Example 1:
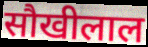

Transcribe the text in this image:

सौखीलाल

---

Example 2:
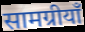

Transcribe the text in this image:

सामग्रीयाँ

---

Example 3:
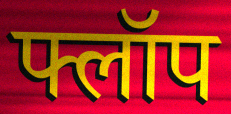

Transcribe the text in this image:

फ्लॉप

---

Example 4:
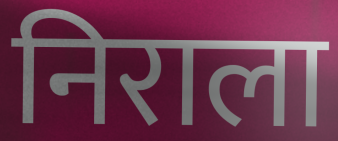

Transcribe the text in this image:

निराला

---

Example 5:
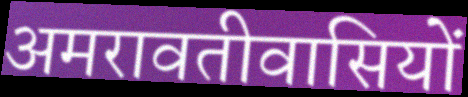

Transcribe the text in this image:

अमरावतीवासियों